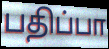
பதிப்பா